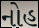
નોહ